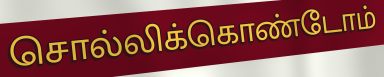
சொல்லிக்கொண்டோம்